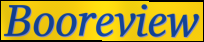
Booreview